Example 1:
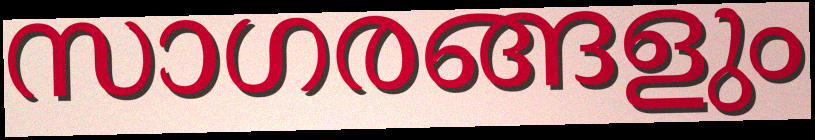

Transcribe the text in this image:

സാഗരങ്ങളും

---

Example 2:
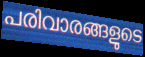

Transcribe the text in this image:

പരിവാരങ്ങളുടെ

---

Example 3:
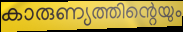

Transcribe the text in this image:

കാരുണ്യത്തിന്റെയും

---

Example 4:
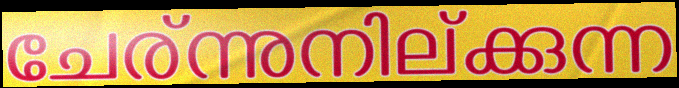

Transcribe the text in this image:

ചേര്ന്നുനില്ക്കുന്ന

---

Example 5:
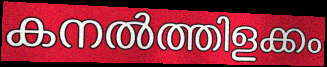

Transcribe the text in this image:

കനൽത്തിളക്കം